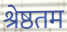
श्रेष्ठतम